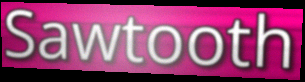
Sawtooth